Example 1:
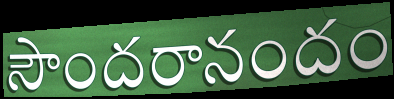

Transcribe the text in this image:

సౌందరానందం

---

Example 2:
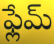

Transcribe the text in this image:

ఫ్లేమ్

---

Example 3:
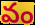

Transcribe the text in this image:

వం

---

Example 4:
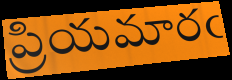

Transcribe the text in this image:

ప్రియమారఁ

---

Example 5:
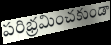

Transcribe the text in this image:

పరిభ్రమించకుండా